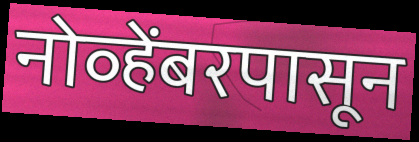
नोव्हेंबरपासून